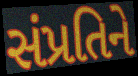
સંપ્રતિને